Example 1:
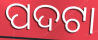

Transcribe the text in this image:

ପଦଟା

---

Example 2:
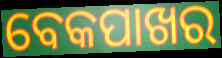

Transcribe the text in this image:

ବେକପାଖର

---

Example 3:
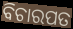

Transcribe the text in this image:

ବିଚାରପତ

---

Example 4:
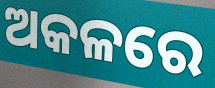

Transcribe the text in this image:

ଅକଳରେ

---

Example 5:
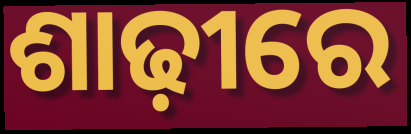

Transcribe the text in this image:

ଶାଢ଼ୀରେ